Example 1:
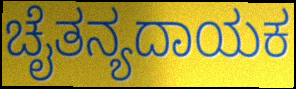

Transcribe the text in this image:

ಚೈತನ್ಯದಾಯಕ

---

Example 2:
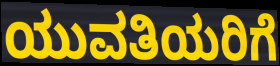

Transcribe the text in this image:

ಯುವತಿಯರಿಗೆ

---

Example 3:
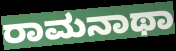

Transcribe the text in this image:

ರಾಮನಾಥಾ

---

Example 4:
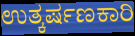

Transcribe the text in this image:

ಉತ್ಕರ್ಷಣಕಾರಿ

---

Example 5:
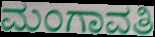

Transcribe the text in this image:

ಮಂಗಾವತಿ